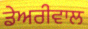
ਡੇਅਰੀਵਾਲ